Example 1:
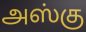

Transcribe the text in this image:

அஸ்கு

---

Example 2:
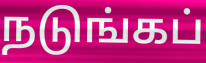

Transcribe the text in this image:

நடுங்கப்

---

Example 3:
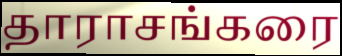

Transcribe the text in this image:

தாராசங்கரை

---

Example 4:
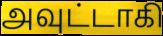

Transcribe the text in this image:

அவுட்டாகி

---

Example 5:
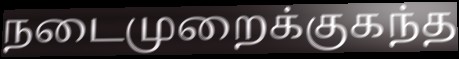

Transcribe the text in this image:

நடைமுறைக்குகந்த